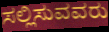
ಸಲ್ಲಿಸುವವರು